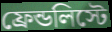
ফ্রেন্ডলিস্টে